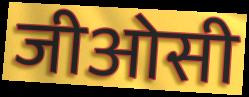
जीओसी